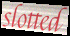
slotted